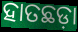
ହାତଛଡ଼ା